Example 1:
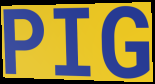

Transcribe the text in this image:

PIG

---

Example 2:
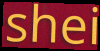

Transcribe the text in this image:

shei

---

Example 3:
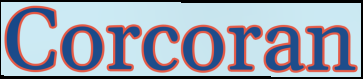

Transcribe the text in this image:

Corcoran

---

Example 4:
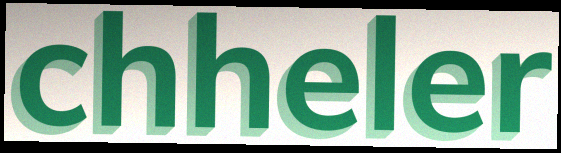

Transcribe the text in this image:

chheler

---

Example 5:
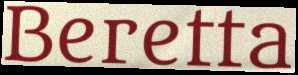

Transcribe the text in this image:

Beretta